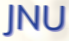
JNU